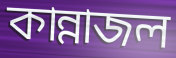
কান্নাজল